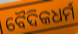
ବୈଦିକଧର୍ମ